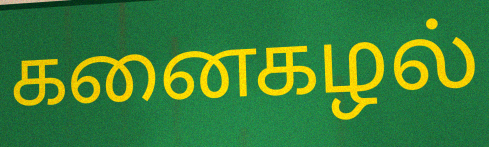
கனைகழல்